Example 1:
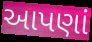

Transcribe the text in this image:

આપણાં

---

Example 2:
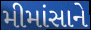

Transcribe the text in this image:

મીમાંસાને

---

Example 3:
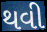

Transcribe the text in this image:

થવી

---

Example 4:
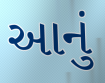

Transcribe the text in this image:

આનું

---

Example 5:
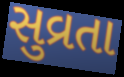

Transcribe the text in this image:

સુવ્રતા